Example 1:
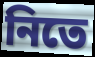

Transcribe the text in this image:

নিতে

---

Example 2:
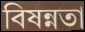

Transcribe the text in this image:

বিষন্নতা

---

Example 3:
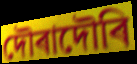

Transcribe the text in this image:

দৌৰাদৌৰি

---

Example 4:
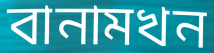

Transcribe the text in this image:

বানামখন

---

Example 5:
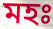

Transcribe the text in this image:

মহঃ